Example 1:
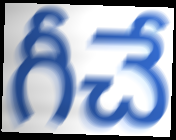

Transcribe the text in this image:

గీచే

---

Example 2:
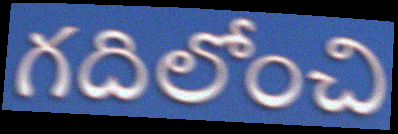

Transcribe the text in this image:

గదిలోంచి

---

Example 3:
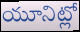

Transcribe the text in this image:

యూనిట్లో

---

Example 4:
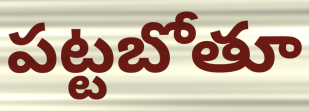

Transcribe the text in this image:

పట్టబోతూ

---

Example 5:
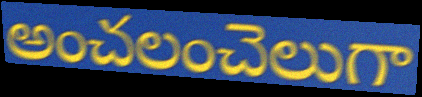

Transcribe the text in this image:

అంచలంచెలుగా